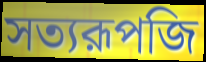
সত্যরূপজি